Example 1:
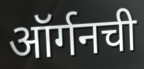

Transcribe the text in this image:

ऑर्गनची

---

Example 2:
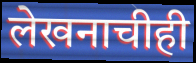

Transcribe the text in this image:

लेखनाचीही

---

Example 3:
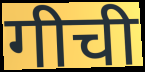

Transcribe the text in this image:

गीची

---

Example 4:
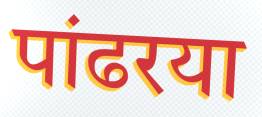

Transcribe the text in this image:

पांढरया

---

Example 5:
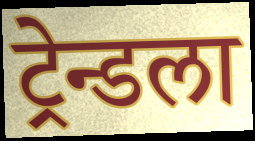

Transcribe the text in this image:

ट्रेन्डला